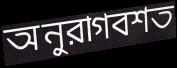
অনুরাগবশত